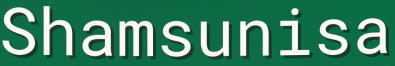
Shamsunisa